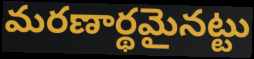
మరణార్థమైనట్టు